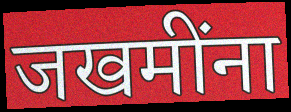
जखमींना